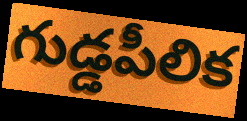
గుడ్డపీలిక